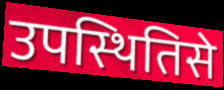
उपस्थितिसे